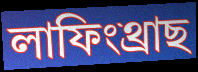
লাফিংথ্ৰাছ